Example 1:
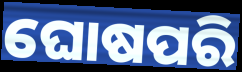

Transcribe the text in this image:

ଘୋଷପରି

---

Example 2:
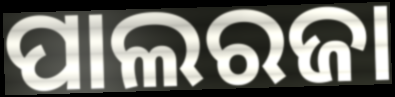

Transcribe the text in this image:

ପାଲରଜା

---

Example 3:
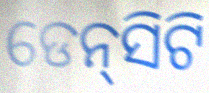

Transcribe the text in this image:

ଡେନ୍‌ସିଟି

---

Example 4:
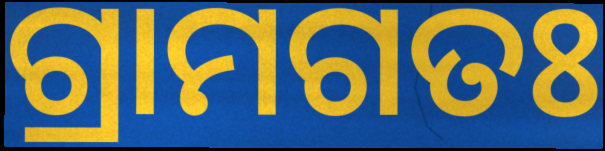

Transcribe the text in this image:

ଗ୍ରାମଗତଃ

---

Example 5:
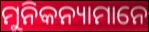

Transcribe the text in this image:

ମୁନିକନ୍ୟାମାନେ